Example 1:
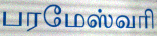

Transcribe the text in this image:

பரமேஸ்வரி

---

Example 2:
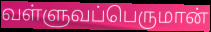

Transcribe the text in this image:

வள்ளுவப்பெருமான்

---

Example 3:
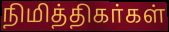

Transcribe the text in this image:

நிமித்திகர்கள்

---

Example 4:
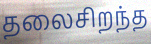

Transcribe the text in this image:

தலைசிறந்த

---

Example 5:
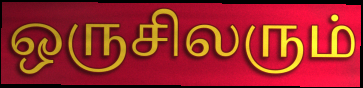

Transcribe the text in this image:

ஒருசிலரும்